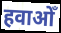
हवाओँ